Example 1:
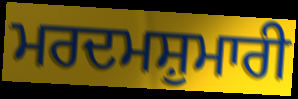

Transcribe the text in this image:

ਮਰਦਮਸ਼ੁਮਾਰੀ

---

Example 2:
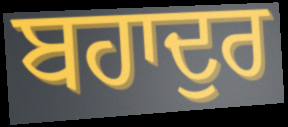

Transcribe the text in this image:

ਬਹਾਦੁਰ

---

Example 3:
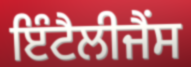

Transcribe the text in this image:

ਇੰਟੈਲੀਜੈਂਸ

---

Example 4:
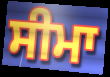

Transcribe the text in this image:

ਸੀਮਾ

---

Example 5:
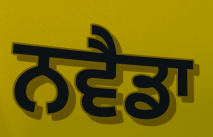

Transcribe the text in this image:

ਨਵੈਡਾ